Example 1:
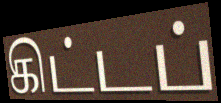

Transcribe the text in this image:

கிட்டப்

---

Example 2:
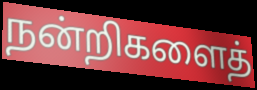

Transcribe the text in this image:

நன்றிகளைத்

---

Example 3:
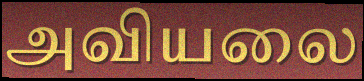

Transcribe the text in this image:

அவியலை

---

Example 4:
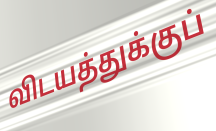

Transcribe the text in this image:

விடயத்துக்குப்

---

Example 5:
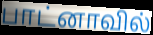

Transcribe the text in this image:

பாட்னாவில்